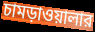
চামড়াওয়ালার